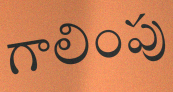
గాలింపు